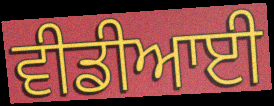
ਵੀਡੀਆਈ